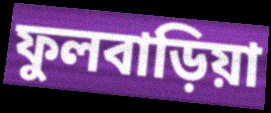
ফুলবাড়িয়া